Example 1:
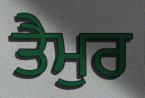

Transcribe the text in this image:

ਤੈਮੁਰ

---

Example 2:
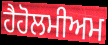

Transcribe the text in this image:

ਹੈਹੋਲਮੀਅਮ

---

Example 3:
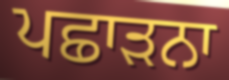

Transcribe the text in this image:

ਪਛਾੜਨਾ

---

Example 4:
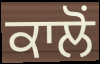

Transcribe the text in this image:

ਕਾਲੋਂ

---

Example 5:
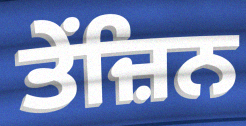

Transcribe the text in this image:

ਤੇਂਜ਼ਿਨ